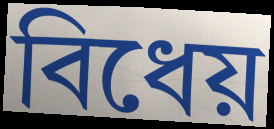
বিধেয়